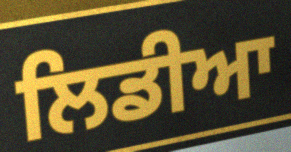
ਲਿਡੀਆ